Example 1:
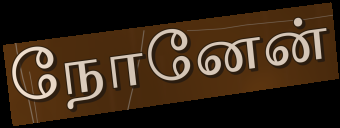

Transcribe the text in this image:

நோனேன்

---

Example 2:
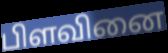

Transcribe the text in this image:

பிளவினை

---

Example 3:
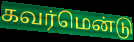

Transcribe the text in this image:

கவர்மென்டு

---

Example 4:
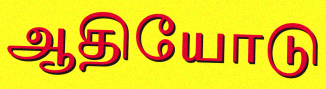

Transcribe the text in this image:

ஆதியோடு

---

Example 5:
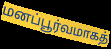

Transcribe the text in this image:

மனப்பூர்வமாகத்